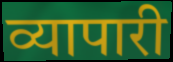
व्‍यापारी